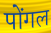
पोंगल